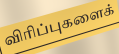
விரிப்புகளைக்